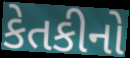
કેતકીનો